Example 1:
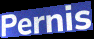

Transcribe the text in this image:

Pernis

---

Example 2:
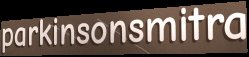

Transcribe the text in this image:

parkinsonsmitra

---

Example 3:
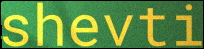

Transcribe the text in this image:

shevti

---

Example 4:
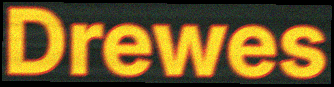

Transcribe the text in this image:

Drewes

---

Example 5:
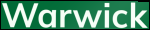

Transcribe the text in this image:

Warwick